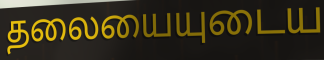
தலையையுடைய